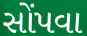
સોંપવા